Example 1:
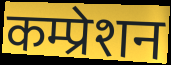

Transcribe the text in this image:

कम्प्रेशन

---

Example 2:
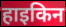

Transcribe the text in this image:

हाइकिन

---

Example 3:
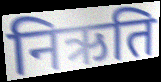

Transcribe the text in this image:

निऋति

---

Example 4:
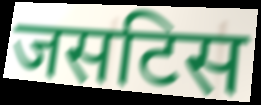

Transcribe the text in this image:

जसटिस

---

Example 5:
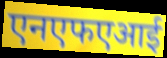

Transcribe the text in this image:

एनएफएआई